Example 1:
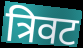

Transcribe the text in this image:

त्रिवट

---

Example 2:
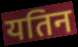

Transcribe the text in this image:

यतिन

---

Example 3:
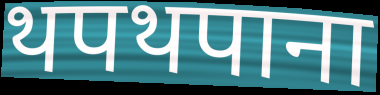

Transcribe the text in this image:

थपथपाना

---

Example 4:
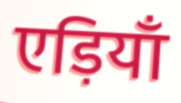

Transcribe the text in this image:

एड़ियाँ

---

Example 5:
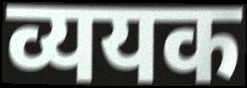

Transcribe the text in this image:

व्ययक